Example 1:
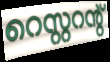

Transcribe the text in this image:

റെസ്റ്ററന്റ്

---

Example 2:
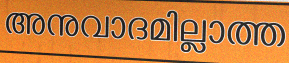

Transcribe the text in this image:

അനുവാദമില്ലാത്ത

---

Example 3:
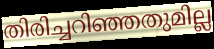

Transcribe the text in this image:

തിരിച്ചറിഞ്ഞതുമില്ല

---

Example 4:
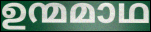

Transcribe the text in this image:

ഉന്മമാഥ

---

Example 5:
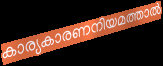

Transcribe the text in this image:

കാര്യകാരണനിയമത്താൽ